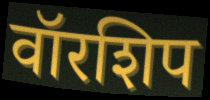
वॉरशिप